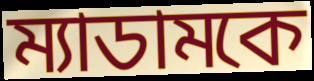
ম্যাডামকে